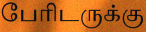
பேரிடருக்கு